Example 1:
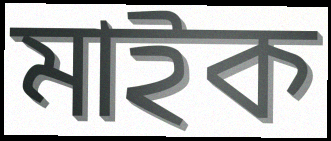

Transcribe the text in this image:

মাইক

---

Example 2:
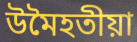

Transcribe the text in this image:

উমৈহতীয়া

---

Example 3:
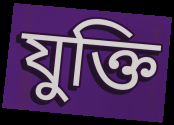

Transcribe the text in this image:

যুক্তি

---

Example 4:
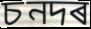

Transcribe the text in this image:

চনদৰ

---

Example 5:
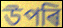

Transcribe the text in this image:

উপৰি